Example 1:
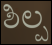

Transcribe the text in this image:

ಶಿಲ್ಪ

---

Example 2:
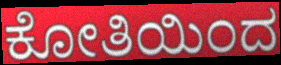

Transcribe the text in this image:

ಕೋತಿಯಿಂದ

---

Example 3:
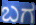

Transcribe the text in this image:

ಬಗ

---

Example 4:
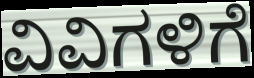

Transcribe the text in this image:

ವಿವಿಗಳಿಗೆ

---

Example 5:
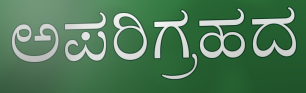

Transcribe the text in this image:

ಅಪರಿಗ್ರಹದ